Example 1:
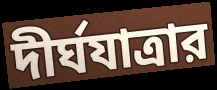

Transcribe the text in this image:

দীর্ঘযাত্রার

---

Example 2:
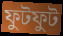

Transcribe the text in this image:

ফুটফুট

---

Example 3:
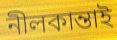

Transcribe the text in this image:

নীলকান্তাই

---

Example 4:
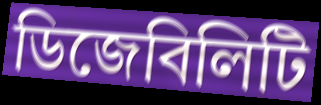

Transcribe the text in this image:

ডিজেবিলিটি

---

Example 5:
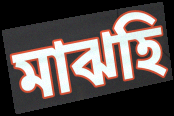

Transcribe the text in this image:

মাঝহি